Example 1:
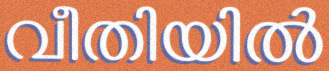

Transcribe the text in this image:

വീതിയിൽ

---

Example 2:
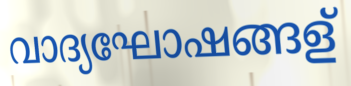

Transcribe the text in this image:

വാദ്യഘോഷങ്ങള്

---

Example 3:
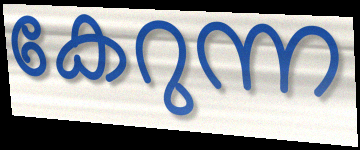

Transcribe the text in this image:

കേറുന്ന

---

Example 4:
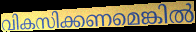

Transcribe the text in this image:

വികസിക്കണമെങ്കിൽ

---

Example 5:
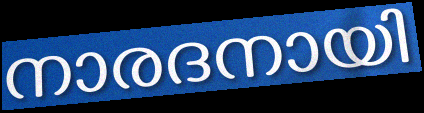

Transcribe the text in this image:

നാരദനായി